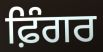
ਫ਼ਿੰਗਰ